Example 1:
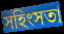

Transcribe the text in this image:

সহিংসতা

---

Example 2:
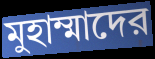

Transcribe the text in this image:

মুহাম্মাদের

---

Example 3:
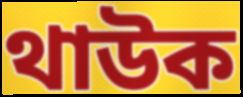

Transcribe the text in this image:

থাউক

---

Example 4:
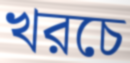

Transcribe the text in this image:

খরচে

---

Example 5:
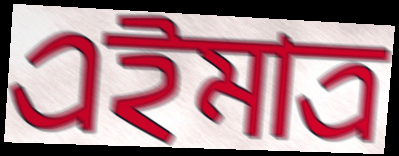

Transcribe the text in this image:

এইমাত্র